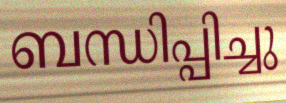
ബന്ധിപ്പിച്ചു